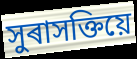
সুৰাসক্তিয়ে